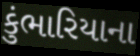
કુંભારિયાના